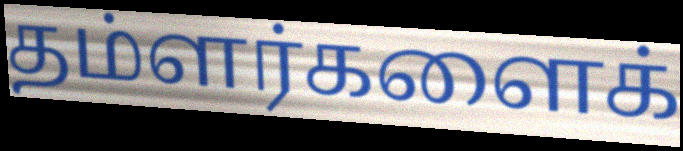
தம்ளர்களைக்